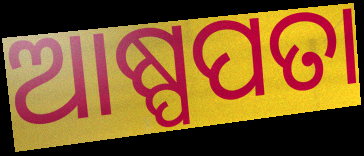
ଆଷ୍ପପତା